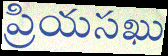
ప్రియసఖు